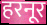
हरनूर